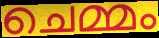
ചെമ്മം